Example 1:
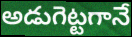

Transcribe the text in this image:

అడుగెట్టగానే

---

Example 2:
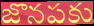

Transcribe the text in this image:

జొనపకు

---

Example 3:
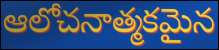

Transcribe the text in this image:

ఆలోచనాత్మకమైన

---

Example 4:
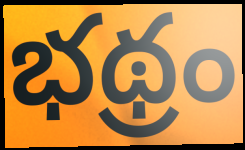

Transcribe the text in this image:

భథ్రం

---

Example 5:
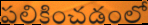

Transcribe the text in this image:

పలికించడంలో